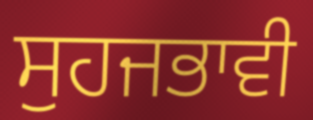
ਸੁਹਜਭਾਵੀ